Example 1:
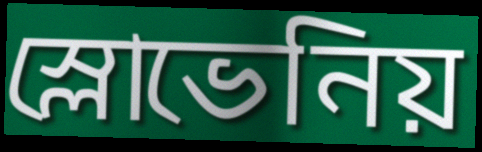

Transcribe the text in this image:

স্লোভেনিয়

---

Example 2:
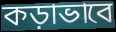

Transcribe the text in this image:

কড়াভাবে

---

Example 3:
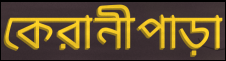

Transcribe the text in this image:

কেরানীপাড়া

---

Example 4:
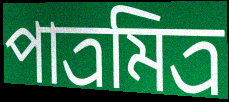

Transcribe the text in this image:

পাত্রমিত্র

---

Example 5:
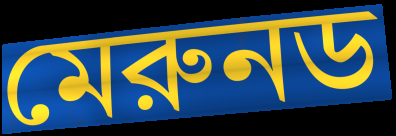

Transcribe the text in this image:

মেরুনড